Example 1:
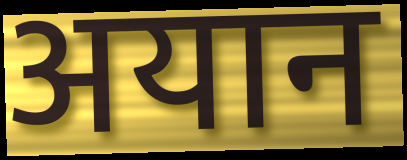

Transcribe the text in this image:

अयान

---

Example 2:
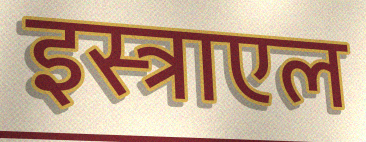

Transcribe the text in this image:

इस्त्राएल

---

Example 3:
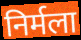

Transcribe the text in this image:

निर्मला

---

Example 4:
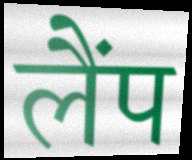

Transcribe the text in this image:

लैंप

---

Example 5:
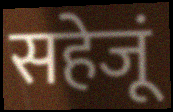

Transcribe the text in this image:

सहेजूं